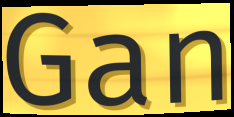
Gan